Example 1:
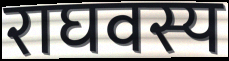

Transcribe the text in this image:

राघवस्य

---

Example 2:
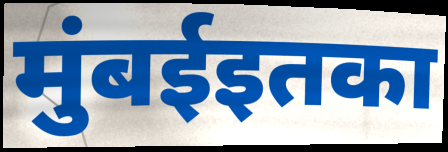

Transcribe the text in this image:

मुंबईइतका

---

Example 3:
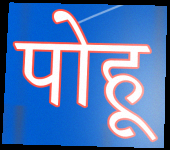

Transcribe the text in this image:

पोहू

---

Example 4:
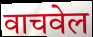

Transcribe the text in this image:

वाचवेल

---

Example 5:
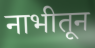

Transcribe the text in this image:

नाभीतून